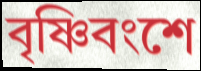
বৃষ্ণিবংশে